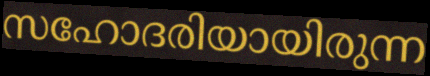
സഹോദരിയായിരുന്ന